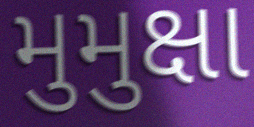
મુમુક્ષા